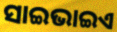
ସାଇଭାଇଏ